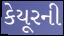
કેયૂરની